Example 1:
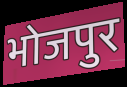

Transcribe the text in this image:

भोजपुर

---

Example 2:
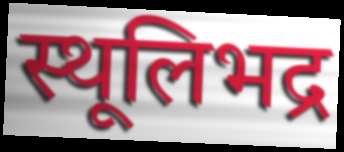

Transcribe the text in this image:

स्थूलिभद्र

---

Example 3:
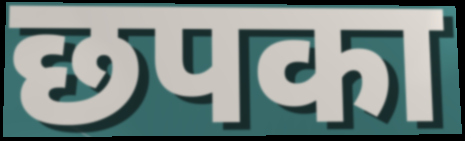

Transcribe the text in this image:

छपका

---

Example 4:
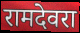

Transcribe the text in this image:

रामदेवरा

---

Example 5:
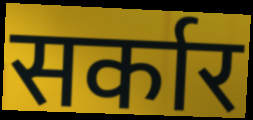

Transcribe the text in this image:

सर्कार